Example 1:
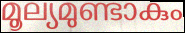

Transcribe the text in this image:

മൂല്യമുണ്ടാകും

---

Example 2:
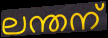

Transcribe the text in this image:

ലന്തന്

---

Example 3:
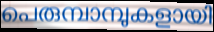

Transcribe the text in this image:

പെരുമ്പാമ്പുകളായി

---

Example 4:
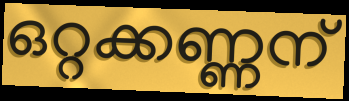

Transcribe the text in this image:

ഒറ്റക്കണ്ണന്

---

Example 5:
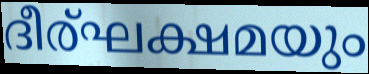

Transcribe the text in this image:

ദീര്ഘക്ഷമയും